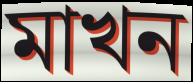
মাখন